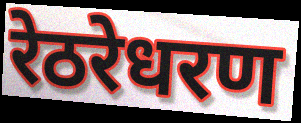
रेठरेधरण